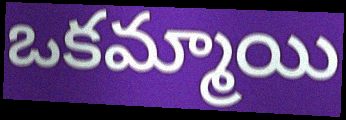
ఒకమ్మాయి